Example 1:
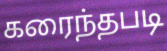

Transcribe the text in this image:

கரைந்தபடி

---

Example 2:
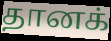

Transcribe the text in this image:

தானக்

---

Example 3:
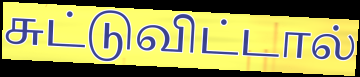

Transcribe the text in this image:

சுட்டுவிட்டால்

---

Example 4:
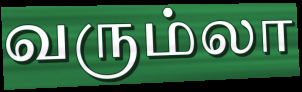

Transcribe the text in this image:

வரும்லா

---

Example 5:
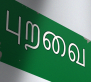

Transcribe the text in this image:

புறவை